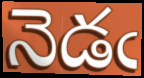
నెడఁ